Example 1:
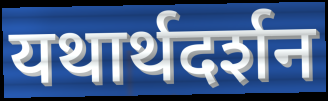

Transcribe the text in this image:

यथार्थदर्शन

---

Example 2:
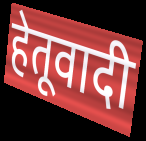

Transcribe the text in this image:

हेतूवादी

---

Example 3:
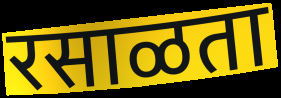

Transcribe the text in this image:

रसाळता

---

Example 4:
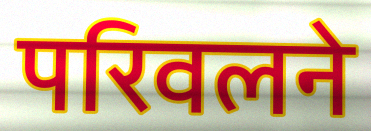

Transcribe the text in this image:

परिवलने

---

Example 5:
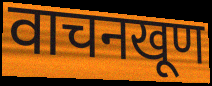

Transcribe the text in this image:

वाचनखूण